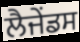
ਲੈਜੇਂਡਸ